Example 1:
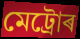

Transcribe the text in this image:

মেট্ৰোৰ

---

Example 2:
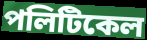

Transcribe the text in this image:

পলিটিকেল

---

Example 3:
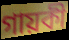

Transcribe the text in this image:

গায়কী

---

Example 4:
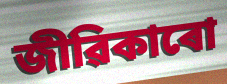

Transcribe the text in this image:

জীৱিকাৰো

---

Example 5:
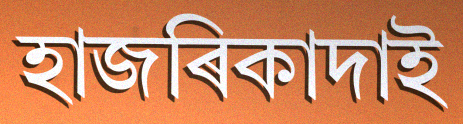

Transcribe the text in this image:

হাজৰিকাদাই